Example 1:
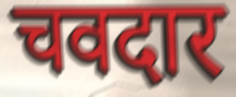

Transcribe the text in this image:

चवदार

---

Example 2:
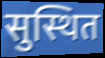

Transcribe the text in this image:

सुस्थित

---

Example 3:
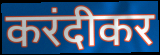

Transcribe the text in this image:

करंदीकर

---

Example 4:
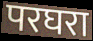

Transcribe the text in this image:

परघरा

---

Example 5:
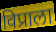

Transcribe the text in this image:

विप्राला